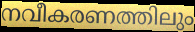
നവീകരണത്തിലും